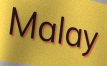
Malay